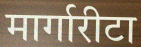
मार्गारीटा